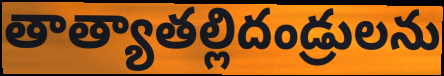
తాత్యాతల్లిదండ్రులను